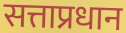
सत्ताप्रधान